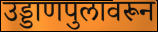
उड्डाणपुलावरून